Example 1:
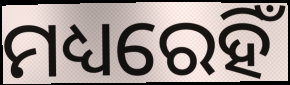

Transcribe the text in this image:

ମଧ୍ୟରେହିଁ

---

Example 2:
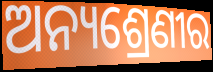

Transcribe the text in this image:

ଅନ୍ୟଶ୍ରେଣୀର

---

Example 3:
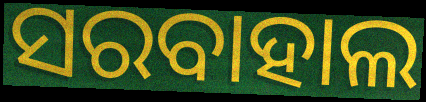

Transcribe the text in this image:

ସରବାହାଲ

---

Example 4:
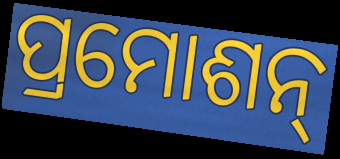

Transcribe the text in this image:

ପ୍ରମୋଶନ୍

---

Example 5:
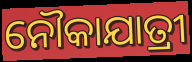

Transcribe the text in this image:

ନୌକାଯାତ୍ରୀ